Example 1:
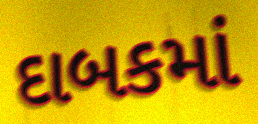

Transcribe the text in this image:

દાબકમાં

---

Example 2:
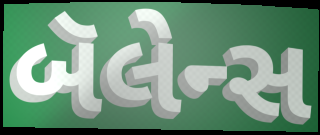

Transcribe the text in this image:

બૅલેન્સ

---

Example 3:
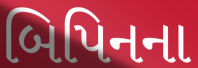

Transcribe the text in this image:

બિપિનના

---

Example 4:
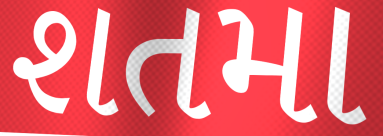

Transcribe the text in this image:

શતમા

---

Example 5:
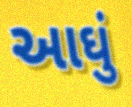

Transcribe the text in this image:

આઘું